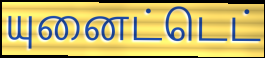
யுனைட்டெட்